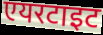
एयरटाइट